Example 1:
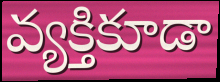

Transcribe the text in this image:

వ్యక్తికూడా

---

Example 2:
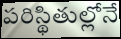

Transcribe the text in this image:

పరిస్థితుల్లోనే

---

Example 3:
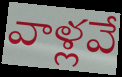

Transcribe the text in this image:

వాళ్లవే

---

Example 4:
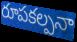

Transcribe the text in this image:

రూపకల్పనా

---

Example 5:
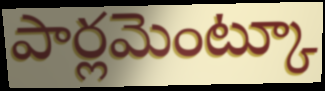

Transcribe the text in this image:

పార్లమెంట్కూ